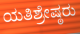
ಯತಿಶ್ರೇಷ್ಠರು